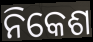
ନିକେଶ